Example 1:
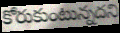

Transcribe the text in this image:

కోరుకుంటున్నదని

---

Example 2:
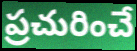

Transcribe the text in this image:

ప్రచురించే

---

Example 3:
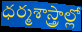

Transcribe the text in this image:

ధర్మశాస్త్రాల్లో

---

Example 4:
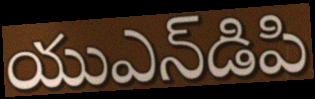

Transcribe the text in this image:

యుఎన్‌డిపి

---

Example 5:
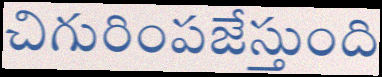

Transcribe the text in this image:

చిగురింపజేస్తుంది